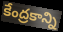
కేంద్రకాన్ని